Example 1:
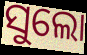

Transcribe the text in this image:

ସୁଲୋ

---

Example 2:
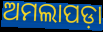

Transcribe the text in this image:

ଅମଲାପଡ଼ା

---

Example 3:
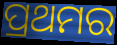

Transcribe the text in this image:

ପ୍ରଥମର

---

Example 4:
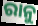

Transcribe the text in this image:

ରାନୁ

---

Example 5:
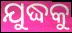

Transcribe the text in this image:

ଯୁଦ୍ଧକୁ